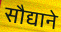
सौद्याने